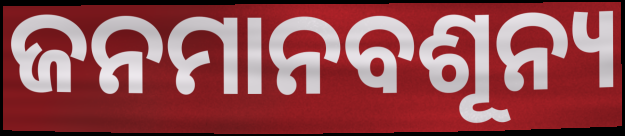
ଜନମାନବଶୂନ୍ୟ